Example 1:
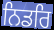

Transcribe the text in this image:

ਨਿਡਰਿ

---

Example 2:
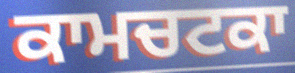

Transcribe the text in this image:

ਕਾਮਚਟਕਾ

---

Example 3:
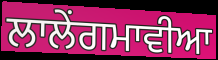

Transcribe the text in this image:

ਲਾਲੇਂਗਮਾਵੀਆ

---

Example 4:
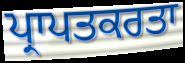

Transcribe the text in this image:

ਪ੍ਰਾਪਤਕਰਤਾ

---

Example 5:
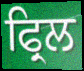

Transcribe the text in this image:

ਫ੍ਰਿਲ